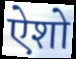
ऐशो